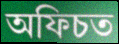
অফিচত